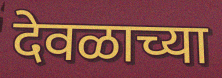
देवळाच्या